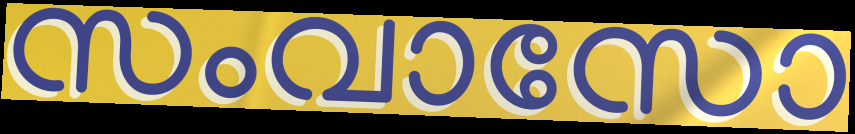
സംവാസോ